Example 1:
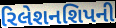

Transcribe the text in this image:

રિલેશનશિપની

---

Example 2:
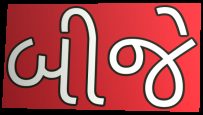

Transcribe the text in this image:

બીજે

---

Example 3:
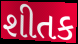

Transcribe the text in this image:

શીતક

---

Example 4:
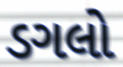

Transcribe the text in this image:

ડગલો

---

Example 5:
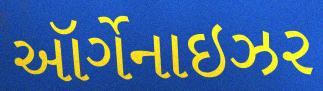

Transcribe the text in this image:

ઑર્ગેનાઇઝર